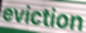
eviction